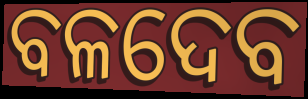
ବଳଦେବ